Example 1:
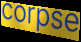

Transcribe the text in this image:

corpse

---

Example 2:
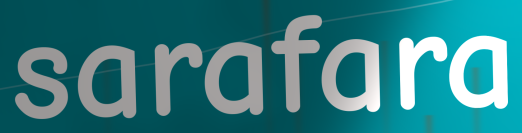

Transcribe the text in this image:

sarafara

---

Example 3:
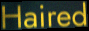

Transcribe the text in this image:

Haired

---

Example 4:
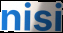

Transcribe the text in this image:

nisi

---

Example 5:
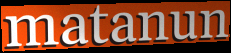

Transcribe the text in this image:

matanun